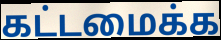
கட்டமைக்க